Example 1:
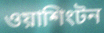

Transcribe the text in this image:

ওয়াশিংটন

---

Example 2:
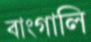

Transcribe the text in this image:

বাংগালি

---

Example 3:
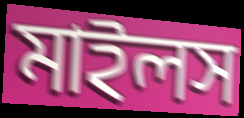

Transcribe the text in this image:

মাইলস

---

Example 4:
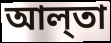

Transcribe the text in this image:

আল্‌তা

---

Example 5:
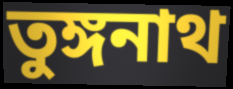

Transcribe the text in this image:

তুঙ্গনাথ